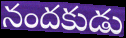
నందకుడు